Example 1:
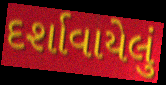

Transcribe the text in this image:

દર્શાવાયેલું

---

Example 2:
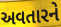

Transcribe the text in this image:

અવતારને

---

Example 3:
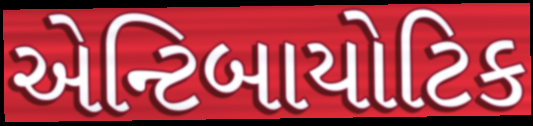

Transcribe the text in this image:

એન્ટિબાયોટિક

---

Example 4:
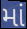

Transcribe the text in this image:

માં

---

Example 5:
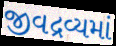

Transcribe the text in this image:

જીવદ્રવ્યમાં